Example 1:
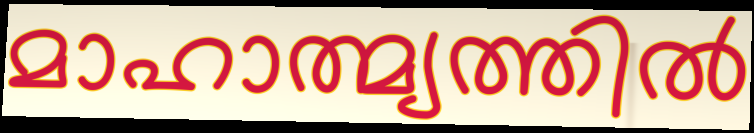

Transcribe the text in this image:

മാഹാത്മ്യത്തിൽ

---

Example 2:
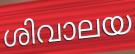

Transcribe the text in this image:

ശിവാലയ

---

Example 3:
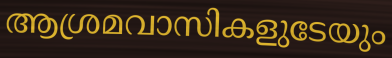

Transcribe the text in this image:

ആശ്രമവാസികളുടേയും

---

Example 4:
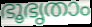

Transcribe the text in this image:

ഭൂഭൃതാം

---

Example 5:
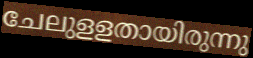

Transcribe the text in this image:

ചേലുളളതായിരുന്നു